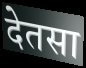
देतसा